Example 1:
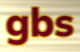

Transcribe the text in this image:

gbs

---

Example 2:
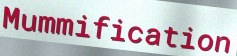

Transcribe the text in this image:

Mummification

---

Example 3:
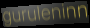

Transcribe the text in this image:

guruleninn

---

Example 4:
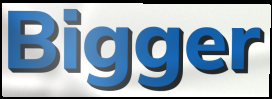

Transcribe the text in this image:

Bigger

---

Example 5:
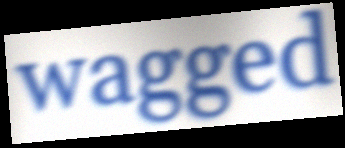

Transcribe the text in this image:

wagged